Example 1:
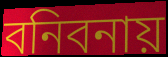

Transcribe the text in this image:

বনিবনায়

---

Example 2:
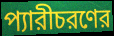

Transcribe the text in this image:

প্যারীচরণের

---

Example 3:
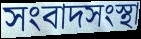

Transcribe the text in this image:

সংবাদসংস্থা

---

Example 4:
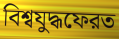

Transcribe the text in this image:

বিশ্বযুদ্ধফেরত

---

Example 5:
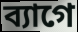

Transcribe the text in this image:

ব্যাগে